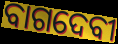
ବାଗଦେବୀ